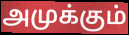
அமுக்கும்